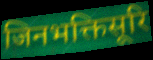
जिनभक्तिसूरि